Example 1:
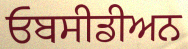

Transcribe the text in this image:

ਓਬਸੀਡੀਅਨ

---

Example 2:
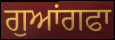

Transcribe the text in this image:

ਗੁਆਂਗਫਾ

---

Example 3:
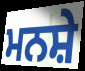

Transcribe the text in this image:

ਮਨਸ਼ੇ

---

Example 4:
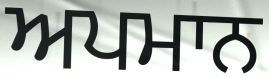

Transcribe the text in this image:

ਅਪਮਾਨ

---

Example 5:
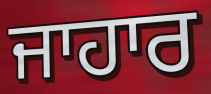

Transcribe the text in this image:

ਜਾਹਾਰ